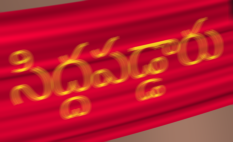
సిద్దపడ్డారు